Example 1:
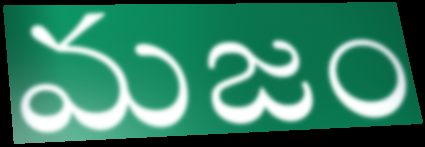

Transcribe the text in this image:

మజం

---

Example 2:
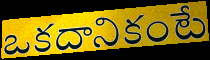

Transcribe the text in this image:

ఒకదానికంటే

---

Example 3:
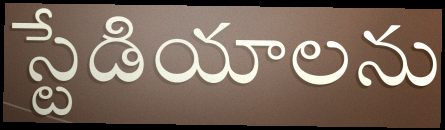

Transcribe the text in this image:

స్టేడియాలను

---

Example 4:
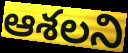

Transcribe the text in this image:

ఆశలని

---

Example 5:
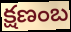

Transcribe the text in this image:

క్షణంబ